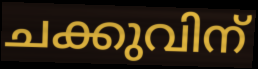
ചക്കുവിന്